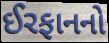
ઈરફાનનો